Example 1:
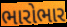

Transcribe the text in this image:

ભારોભાર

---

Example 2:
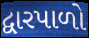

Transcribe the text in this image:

દ્વારપાળો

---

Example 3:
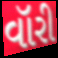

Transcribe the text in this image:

વૉરી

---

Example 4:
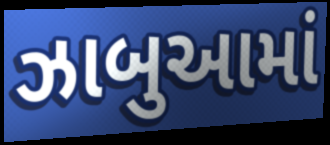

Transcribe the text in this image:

ઝાબુઆમાં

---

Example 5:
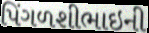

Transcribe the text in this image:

પિંગળશીભાઇની